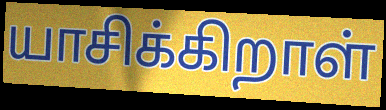
யாசிக்கிறாள்